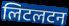
लिटलटन